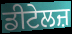
ਡੀਟੇਲਜ਼